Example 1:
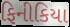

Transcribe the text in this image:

ફિનીકિયા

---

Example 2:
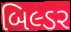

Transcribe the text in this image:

બિલ્ડર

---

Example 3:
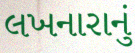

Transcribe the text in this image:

લખનારાનું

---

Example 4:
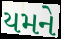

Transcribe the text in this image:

યમને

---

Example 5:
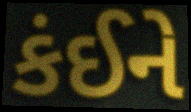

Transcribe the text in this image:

કંઈને